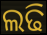
ଲଢି